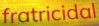
fratricidal